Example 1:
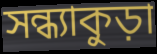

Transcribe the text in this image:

সন্ধ্যাকুড়া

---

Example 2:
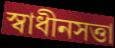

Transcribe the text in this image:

স্বাধীনসত্তা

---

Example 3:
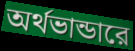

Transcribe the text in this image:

অর্থভান্ডারে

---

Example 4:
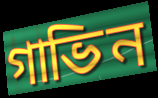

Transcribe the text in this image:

গাভিন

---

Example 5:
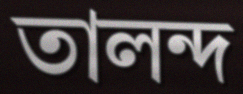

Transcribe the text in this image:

তালন্দ